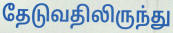
தேடுவதிலிருந்து